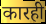
कारही